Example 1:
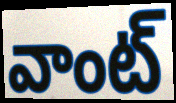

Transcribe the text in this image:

వాంట్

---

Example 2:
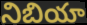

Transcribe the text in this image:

నిబియా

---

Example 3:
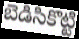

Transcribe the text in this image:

బెడిసికొట్టి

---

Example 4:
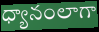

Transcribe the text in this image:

ధ్యానంలాగా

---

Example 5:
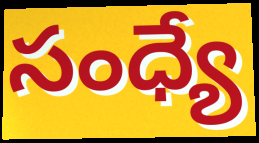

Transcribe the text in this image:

సంధ్యే